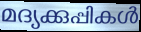
മദ്യക്കുപ്പികൾ